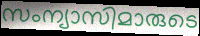
സംന്യാസിമാരുടെ